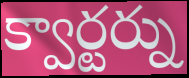
క్వార్టర్ను